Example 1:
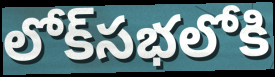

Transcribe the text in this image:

లోక్‌సభలోకి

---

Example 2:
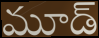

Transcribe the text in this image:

మూడ్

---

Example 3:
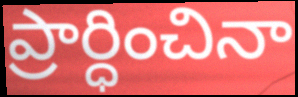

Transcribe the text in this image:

ప్రార్ధించినా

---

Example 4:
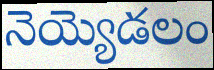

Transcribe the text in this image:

నెయ్యెడలం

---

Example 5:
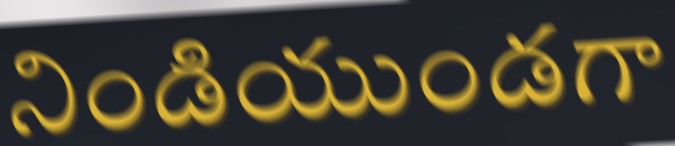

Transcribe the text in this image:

నిండియుండగా